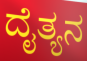
ದೈತ್ಯನ